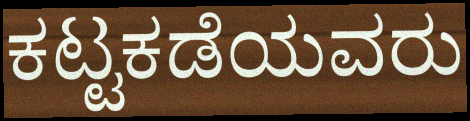
ಕಟ್ಟಕಡೆಯವರು